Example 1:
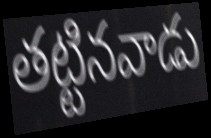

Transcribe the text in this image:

తట్టినవాడు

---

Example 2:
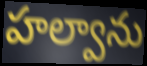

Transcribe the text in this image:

హల్వాను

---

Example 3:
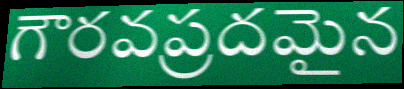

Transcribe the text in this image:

గౌరవప్రదమైన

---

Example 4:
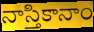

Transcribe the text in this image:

నాస్తికానాం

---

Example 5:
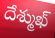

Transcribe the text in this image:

దేశ్ముఖ్